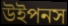
উইপনস